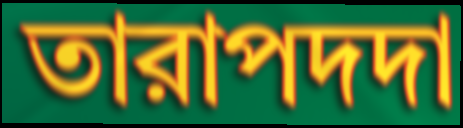
তারাপদদা